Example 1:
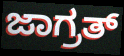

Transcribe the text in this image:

ಜಾಗ್ರತ್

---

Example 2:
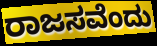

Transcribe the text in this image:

ರಾಜಸವೆಂದು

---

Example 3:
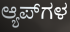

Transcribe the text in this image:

ಆ್ಯಪ್‌ಗಳ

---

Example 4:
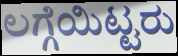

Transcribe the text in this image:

ಲಗ್ಗೆಯಿಟ್ಟರು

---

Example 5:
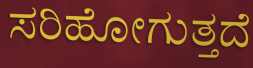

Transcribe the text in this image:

ಸರಿಹೋಗುತ್ತದೆ